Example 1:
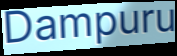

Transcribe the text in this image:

Dampuru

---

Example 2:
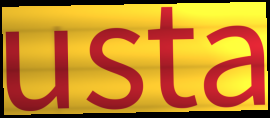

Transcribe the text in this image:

usta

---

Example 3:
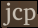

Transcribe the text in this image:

jcp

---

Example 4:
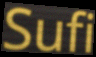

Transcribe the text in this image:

Sufi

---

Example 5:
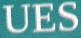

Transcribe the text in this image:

UES